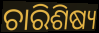
ଚାରିଶିଷ୍ୟ